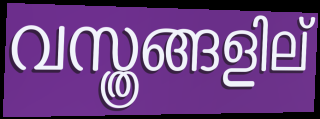
വസ്ത്രങ്ങളില്